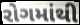
રોગમાંથી